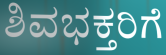
ಶಿವಭಕ್ತರಿಗೆ